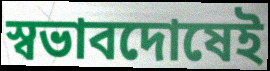
স্বভাবদোষেই